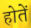
होतें